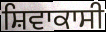
ਸ਼ਿਵਾਕਾਸੀ